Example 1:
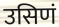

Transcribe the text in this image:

उसिणं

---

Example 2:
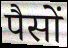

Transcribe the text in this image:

पैसों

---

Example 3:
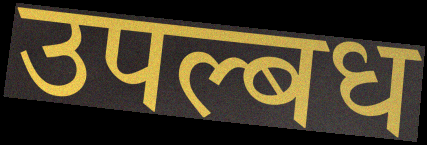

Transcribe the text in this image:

उपल्‍बध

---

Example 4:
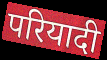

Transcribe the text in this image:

परियादी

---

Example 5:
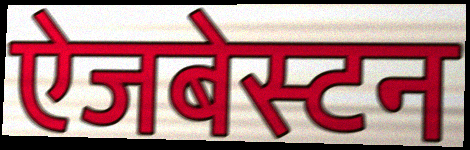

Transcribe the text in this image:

ऐजबेस्टन